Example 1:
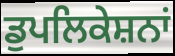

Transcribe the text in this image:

ਡੁਪਲਿਕੇਸ਼ਨਾਂ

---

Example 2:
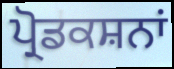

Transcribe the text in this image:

ਪ੍ਰੋਡਕਸ਼ਨਾਂ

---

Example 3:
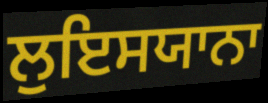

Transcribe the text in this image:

ਲੁਇਸਯਾਨਾ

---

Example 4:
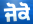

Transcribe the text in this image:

ਜੋਕੋ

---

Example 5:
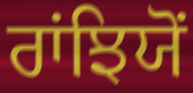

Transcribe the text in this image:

ਰਾਂਝਿਯੋਂ